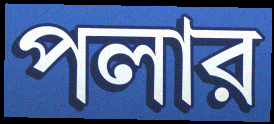
পলার